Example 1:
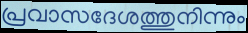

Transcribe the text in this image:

പ്രവാസദേശത്തുനിന്നും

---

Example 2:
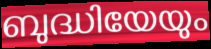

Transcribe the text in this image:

ബുദ്ധിയേയും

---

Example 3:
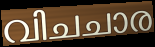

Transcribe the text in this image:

വിചചാര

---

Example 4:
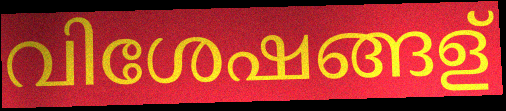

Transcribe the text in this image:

വിശേഷങ്ങള്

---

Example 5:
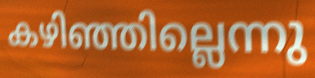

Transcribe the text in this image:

കഴിഞ്ഞില്ലെന്നു